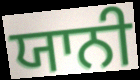
ਯਾਨੀ